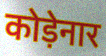
कोड़ेनार